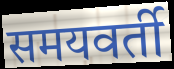
समयवर्ती